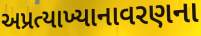
અપ્રત્યાખ્યાનાવરણના